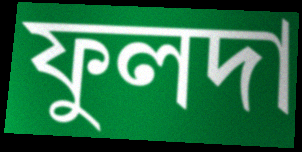
ফুলদা